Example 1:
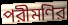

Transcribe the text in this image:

পরীমণির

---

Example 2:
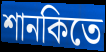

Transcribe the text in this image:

শানকিতে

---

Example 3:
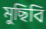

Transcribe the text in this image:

মুছিবি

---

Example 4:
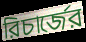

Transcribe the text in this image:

রিচার্জের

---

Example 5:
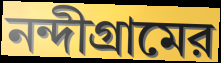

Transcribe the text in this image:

নন্দীগ্রামের